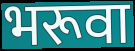
भरूवा